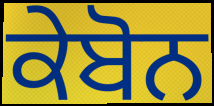
ਕੇਬੋਨ